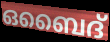
ഒബൈദ്